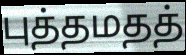
புத்தமதத்